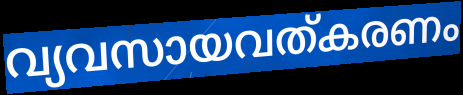
വ്യവസായവത്കരണം